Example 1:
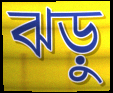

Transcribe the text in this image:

ঝড়ু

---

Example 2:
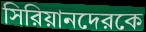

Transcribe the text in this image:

সিরিয়ানদেরকে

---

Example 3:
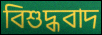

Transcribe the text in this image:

বিশুদ্ধবাদ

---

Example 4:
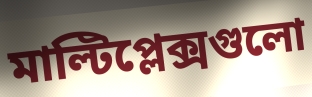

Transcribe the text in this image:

মাল্টিপ্লেক্সগুলো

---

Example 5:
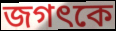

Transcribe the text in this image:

জগৎকে